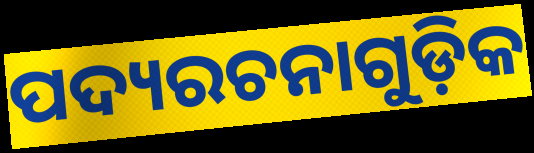
ପଦ୍ୟରଚନାଗୁଡ଼ିକ